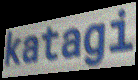
katagi